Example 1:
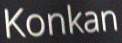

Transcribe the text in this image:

Konkan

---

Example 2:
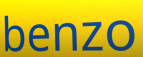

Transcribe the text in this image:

benzo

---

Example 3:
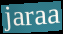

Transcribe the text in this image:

jaraa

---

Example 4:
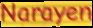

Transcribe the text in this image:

Narayen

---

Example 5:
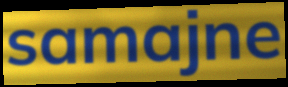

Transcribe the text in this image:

samajne